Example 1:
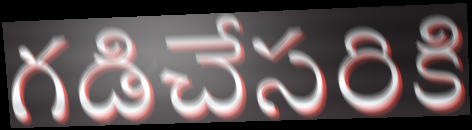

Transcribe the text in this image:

గడిచేసరికి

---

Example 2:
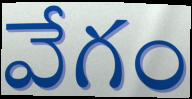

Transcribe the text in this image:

వేగం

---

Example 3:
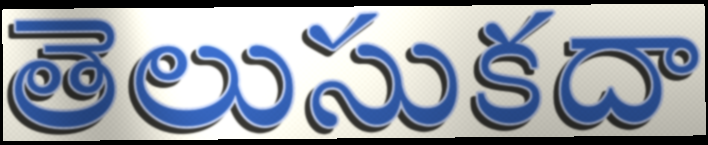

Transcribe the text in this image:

తెలుసుకదా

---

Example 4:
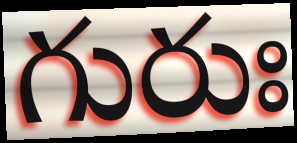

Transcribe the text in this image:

గురుః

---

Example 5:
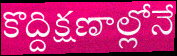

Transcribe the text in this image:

కొద్దిక్షణాల్లోనే